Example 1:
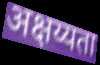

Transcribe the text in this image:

अक्षय्यता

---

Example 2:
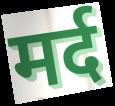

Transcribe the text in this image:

मर्द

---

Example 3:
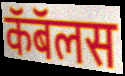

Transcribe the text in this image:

कॅबॅलस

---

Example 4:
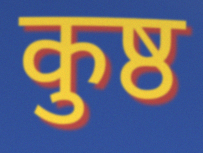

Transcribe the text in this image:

कुष्ठ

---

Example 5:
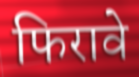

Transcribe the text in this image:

फिरावे